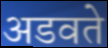
अडवते